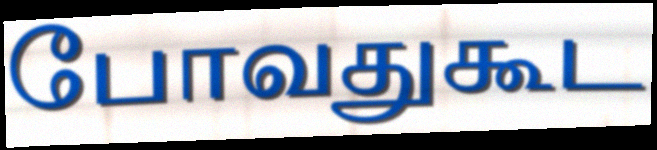
போவதுகூட